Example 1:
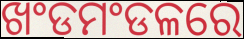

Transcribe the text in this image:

ଖଂଡମଂଡଳରେ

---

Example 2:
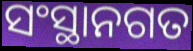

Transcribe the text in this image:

ସଂସ୍ଥାନଗତ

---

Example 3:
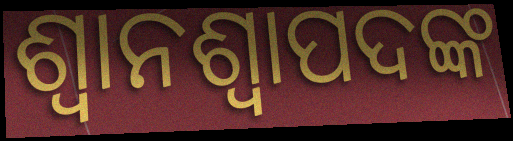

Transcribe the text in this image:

ଶ୍ୱାନଶ୍ୱାପଦଙ୍କ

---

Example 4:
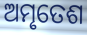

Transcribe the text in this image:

ଅମୃତେଶ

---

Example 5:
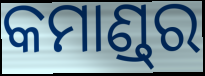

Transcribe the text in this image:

କମାଣ୍ଡ୍‌ର